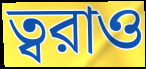
ত্বরাও